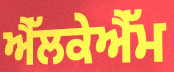
ਐੱਲਕੇਐੱਮ